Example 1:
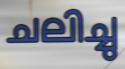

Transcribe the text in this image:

ചലിച്ചു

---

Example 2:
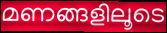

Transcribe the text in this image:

മണങ്ങളിലൂടെ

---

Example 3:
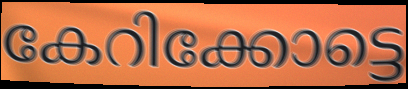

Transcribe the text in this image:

കേറിക്കോട്ടെ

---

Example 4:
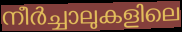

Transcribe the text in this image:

നീർച്ചാലുകളിലെ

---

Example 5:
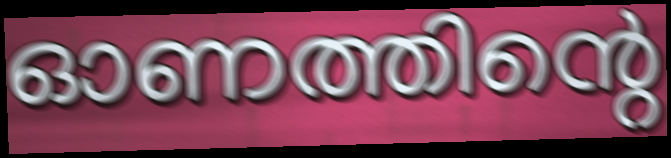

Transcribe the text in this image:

ഓണത്തിന്റെ